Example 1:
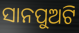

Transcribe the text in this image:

ସାନପୁଅଟି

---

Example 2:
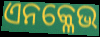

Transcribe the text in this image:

ଏନକ୍ଳେଭ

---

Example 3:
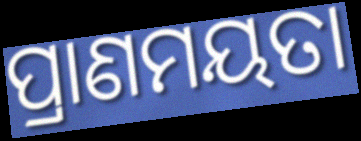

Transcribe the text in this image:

ପ୍ରାଣମୟତା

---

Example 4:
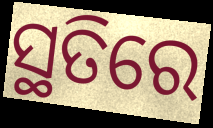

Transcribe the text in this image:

ସ୍ଥତିରେ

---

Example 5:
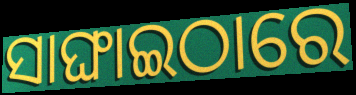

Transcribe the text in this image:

ସାଙ୍ଘାଇଠାରେ